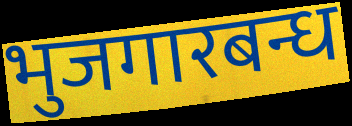
भुजगारबन्ध